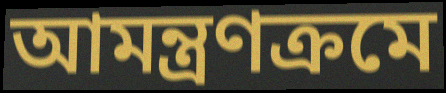
আমন্ত্ৰণক্ৰমে